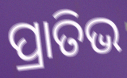
ପ୍ରାତିଭ